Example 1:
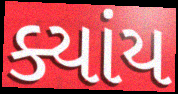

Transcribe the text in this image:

ક્યાંય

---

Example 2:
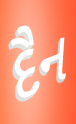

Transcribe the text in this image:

દૈન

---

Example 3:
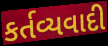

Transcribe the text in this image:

કર્તવ્યવાદી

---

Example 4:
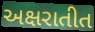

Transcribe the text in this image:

અક્ષરાતીત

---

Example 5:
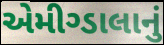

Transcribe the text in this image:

એમીગ્ડાલાનું